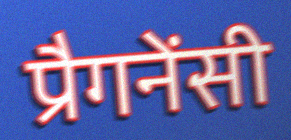
प्रैगनेंसी